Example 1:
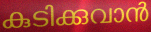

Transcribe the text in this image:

കുടിക്കുവാൻ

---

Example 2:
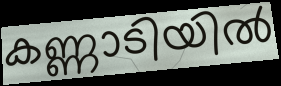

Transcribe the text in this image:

കണ്ണാടിയിൽ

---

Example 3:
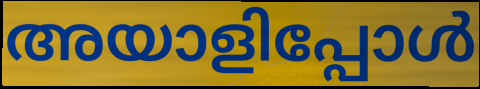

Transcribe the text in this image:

അയാളിപ്പോൾ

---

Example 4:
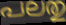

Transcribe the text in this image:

പലതു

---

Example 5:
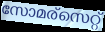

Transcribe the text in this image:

സോമര്സെറ്റ്